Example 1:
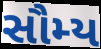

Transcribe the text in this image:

સૌમ્ય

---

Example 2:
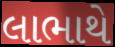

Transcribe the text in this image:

લાભાથે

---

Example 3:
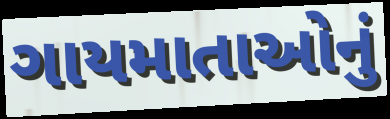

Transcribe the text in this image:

ગાયમાતાઓનું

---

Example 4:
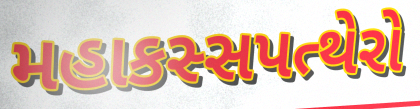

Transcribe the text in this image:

મહાકસ્સપત્થેરો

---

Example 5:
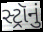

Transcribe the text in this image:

સ્ટ્રૉનું